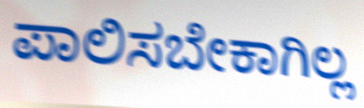
ಪಾಲಿಸಬೇಕಾಗಿಲ್ಲ